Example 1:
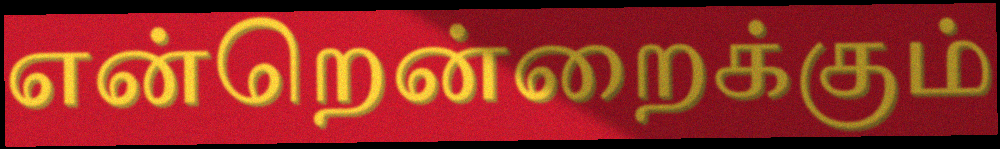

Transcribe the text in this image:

என்றென்றைக்கும்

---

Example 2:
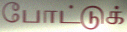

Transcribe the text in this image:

போட்டுக்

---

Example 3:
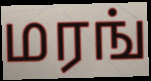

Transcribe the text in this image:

மரங்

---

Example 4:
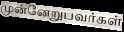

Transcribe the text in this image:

முன்னேறுபவர்கள்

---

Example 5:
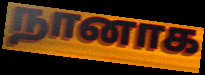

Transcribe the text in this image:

நானாக